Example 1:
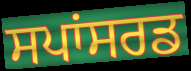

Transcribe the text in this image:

ਸਪਾਂਸਰਡ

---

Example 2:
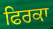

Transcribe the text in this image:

ਫਿਰਕਾ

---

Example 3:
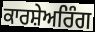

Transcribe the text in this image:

ਕਾਰਸ਼ੇਅਰਿੰਗ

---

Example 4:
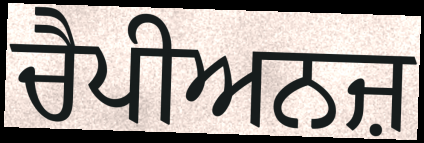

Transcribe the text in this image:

ਚੈਪੀਅਨਜ਼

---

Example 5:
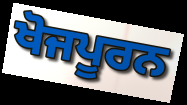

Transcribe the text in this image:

ਖੋਜਪੂਰਨ